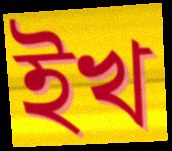
ইখ